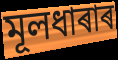
মূলধাৰাৰ